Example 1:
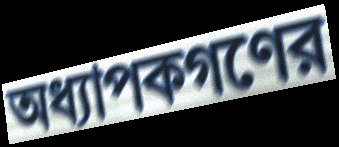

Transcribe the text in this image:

অধ্যাপকগণের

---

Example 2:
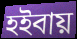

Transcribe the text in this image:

হইবায়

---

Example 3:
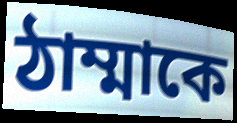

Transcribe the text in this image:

ঠাম্মাকে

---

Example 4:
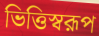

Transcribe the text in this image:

ভিত্তিস্বরূপ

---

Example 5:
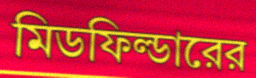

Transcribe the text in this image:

মিডফিল্ডারের